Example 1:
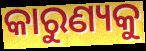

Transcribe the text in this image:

କାରୁଣ୍ୟକୁ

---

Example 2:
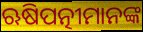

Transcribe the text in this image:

ଋଷିପତ୍ନୀମାନଙ୍କ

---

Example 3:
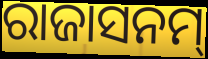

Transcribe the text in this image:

ରାଜାସନମ୍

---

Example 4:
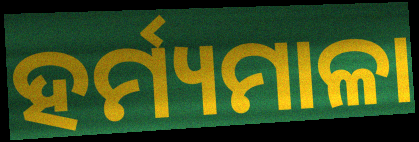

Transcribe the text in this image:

ହର୍ମ୍ୟମାଳା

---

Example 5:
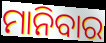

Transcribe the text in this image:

ମାନିବାର